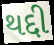
થદ્દી